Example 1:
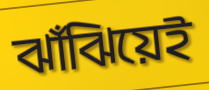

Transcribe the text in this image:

ঝাঁঝিয়েই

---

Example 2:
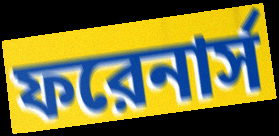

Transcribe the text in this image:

ফরেনার্স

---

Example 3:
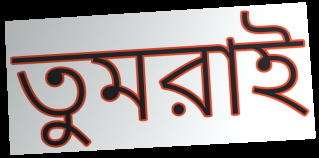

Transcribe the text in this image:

তুমরাই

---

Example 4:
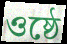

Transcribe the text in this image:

ওষ্ঠে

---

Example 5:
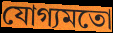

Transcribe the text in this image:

যোগ্যমতো